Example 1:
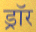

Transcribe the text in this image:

ड्रॉर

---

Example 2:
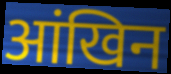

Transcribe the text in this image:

आंखिन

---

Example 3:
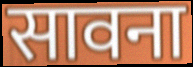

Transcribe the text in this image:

सावना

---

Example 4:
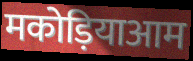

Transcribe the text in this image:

मकोड़ियाआम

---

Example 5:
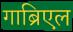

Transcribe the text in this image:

गाब्रिएल